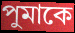
পুমাকে